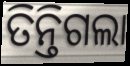
ତିନ୍ତିଗଲା